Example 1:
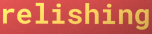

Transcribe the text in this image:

relishing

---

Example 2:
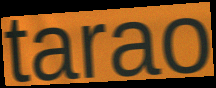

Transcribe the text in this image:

tarao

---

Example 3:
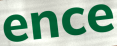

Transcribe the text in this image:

ence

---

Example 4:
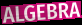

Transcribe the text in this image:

ALGEBRA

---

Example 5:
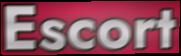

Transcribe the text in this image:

Escort